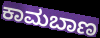
ಕಾಮಬಾಣ